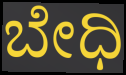
ಬೇಧಿ